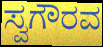
ಸ್ವಗೌರವ